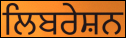
ਲਿਬਰੇਸ਼ਨ